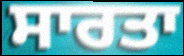
ਸਾਰਤਾ